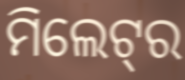
ମିଲେଟ୍‌ର